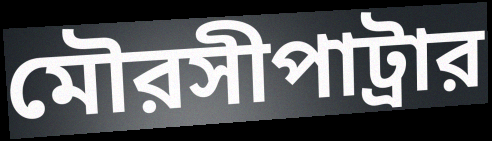
মৌরসীপাট্রার